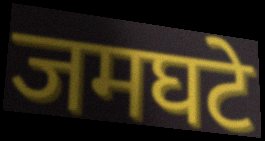
जमघटे